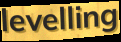
levelling